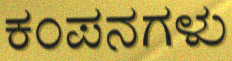
ಕಂಪನಗಳು